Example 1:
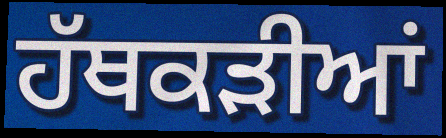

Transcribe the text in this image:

ਹੱਥਕੜੀਆਂ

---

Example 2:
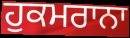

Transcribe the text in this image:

ਹੁਕਮਰਾਨਾ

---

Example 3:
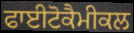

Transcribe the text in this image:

ਫਾਈਟੋਕੈਮੀਕਲ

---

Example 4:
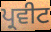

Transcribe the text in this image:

ਪ੍ਰਵੀਟ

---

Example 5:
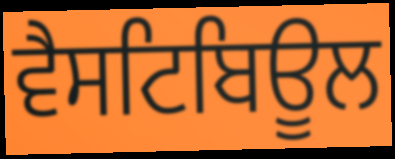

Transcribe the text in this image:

ਵੈਸਟਿਬਿਊਲ